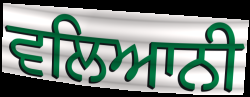
ਵਲਿਆਨੀ